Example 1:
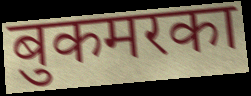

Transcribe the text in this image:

बुकमरका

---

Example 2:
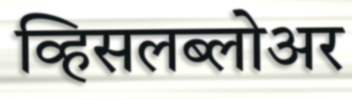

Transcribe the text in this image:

व्हिसलब्लोअर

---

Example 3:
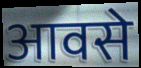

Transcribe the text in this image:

आवसे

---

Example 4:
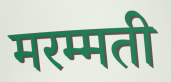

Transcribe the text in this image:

मरम्मती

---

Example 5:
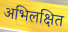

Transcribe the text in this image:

अभिलक्षित